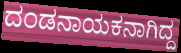
ದಂಡನಾಯಕನಾಗಿದ್ದ